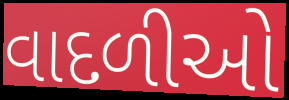
વાદળીઓ